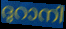
ദുറാനി